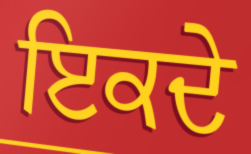
ਇਕਦੇ